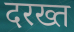
दरख्त